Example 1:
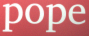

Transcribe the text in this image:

pope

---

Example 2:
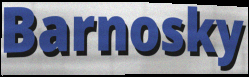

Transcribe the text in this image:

Barnosky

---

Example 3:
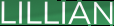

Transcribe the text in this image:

LILLIAN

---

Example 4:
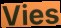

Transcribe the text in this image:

Vies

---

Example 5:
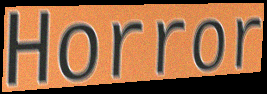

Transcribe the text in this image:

Horror